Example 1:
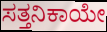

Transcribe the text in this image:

ಸತ್ತನಿಕಾಯೇ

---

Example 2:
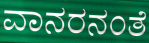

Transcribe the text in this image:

ವಾನರನಂತೆ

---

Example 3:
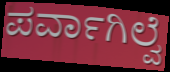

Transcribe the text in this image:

ಪರ್ವಾಗಿಲ್ವೆ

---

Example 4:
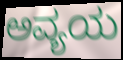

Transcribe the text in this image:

ಅವ್ಯಯ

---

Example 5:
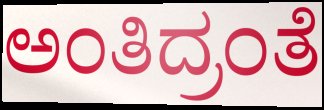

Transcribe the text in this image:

ಅಂತಿದ್ರಂತೆ